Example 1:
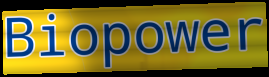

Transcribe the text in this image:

Biopower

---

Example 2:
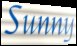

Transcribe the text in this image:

Sunny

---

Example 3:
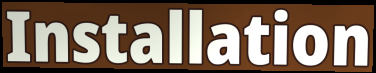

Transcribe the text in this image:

Installation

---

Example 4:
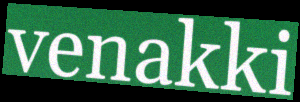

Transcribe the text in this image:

venakki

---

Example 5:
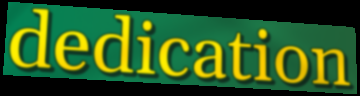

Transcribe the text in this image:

dedication